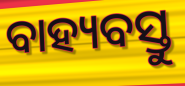
ବାହ୍ୟବସ୍ତୁ